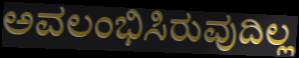
ಅವಲಂಭಿಸಿರುವುದಿಲ್ಲ